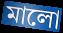
মালো